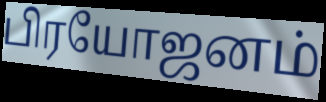
பிரயோஜனம்